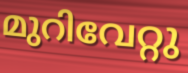
മുറിവേറ്റു